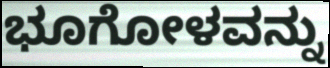
ಭೂಗೋಳವನ್ನು